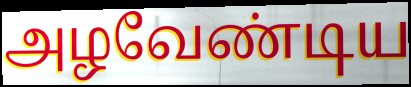
அழவேண்டிய